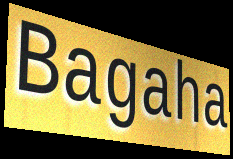
Bagaha